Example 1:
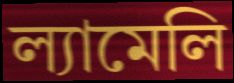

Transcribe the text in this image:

ল্যামেলি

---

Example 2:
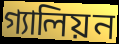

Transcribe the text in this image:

গ্যালিয়ন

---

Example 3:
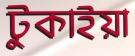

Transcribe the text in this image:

টুকাইয়া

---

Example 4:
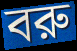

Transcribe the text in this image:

বরু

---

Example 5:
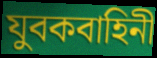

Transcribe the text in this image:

যুবকবাহিনী